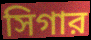
সিগার